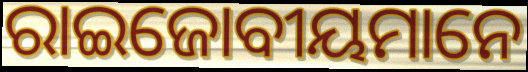
ରାଇଜୋବୀୟମାନେ